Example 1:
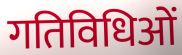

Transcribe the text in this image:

गतिविधिओं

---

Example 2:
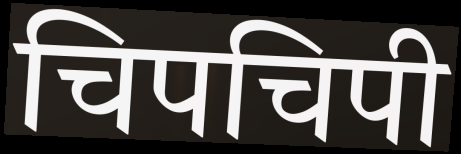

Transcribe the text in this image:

चिपचिपी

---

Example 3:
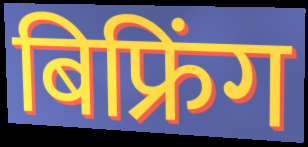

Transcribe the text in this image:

बिफ्रिंग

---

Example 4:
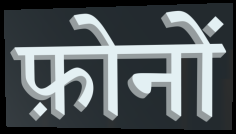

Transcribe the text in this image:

फ़ोनों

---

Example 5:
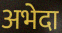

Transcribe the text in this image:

अभेदा